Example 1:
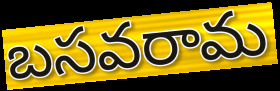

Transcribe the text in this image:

బసవరామ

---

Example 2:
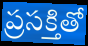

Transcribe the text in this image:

ప్రసక్తితో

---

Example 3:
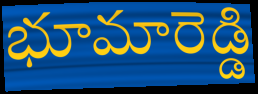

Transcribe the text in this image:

భూమారెడ్డి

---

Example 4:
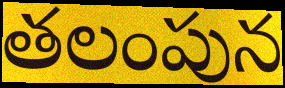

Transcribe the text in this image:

తలంపున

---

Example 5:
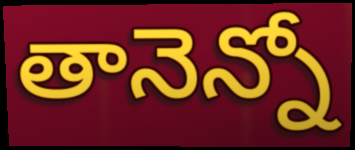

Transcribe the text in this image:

తానెన్నో